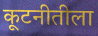
कूटनीतीला